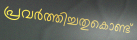
പ്രവർത്തിച്ചതുകൊണ്ട്